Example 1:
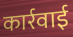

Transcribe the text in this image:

कार्रवाई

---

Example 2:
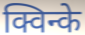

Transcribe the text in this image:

क्विन्के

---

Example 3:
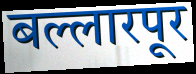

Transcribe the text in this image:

बल्लारपूर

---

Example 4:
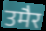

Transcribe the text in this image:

उमैर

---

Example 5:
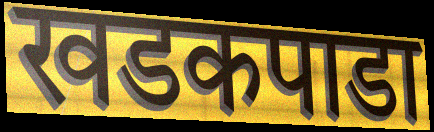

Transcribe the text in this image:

खडकपाडा